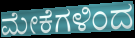
ಮೇಕೆಗಳಿಂದ